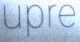
upre